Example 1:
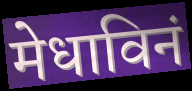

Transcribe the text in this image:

मेधाविनं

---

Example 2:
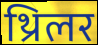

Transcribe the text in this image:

थ्रिलर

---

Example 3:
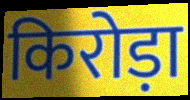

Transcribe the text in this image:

किरोड़ा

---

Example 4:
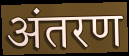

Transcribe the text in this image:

अंतरण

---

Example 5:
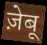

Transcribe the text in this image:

ज़ेबू